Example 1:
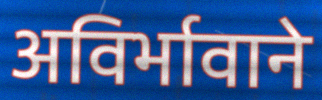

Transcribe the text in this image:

अविर्भावाने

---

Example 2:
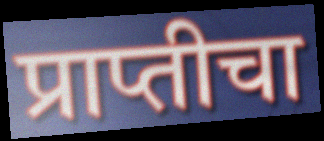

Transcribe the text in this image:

प्राप्तीचा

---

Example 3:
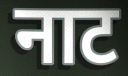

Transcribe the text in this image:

नाट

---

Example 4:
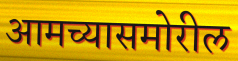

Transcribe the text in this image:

आमच्यासमोरील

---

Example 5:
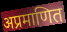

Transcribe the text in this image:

अप्रमाणित